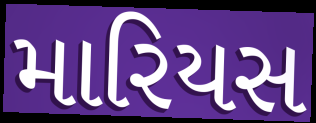
મારિયસ